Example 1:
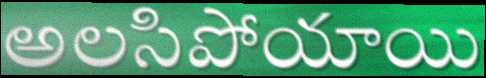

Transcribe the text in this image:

అలసిపోయాయి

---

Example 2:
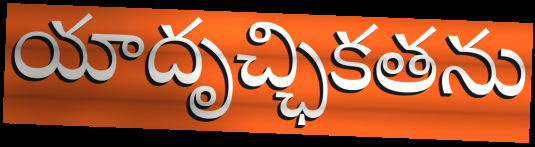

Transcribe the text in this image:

యాదృచ్ఛికతను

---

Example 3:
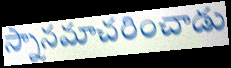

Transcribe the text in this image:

స్నానమాచరించాడు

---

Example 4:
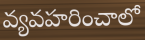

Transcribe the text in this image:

వ్యవహరించాలో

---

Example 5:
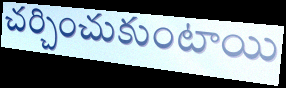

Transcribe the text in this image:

చర్చించుకుంటాయి